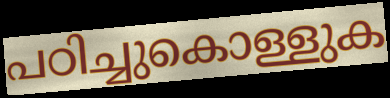
പഠിച്ചുകൊള്ളുക